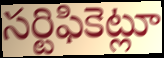
సర్టిఫికెట్లూ